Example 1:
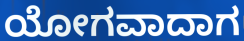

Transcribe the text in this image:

ಯೋಗವಾದಾಗ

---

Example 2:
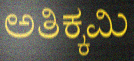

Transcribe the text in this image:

ಅತಿಕ್ಕಮಿ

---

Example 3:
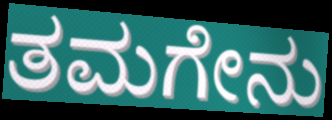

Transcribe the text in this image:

ತಮಗೇನು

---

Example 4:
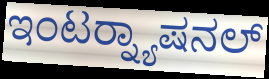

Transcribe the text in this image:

ಇಂಟರ್‍ನ್ಯಾಷನಲ್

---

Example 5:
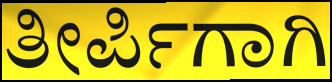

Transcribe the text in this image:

ತೀರ್ಪಿಗಾಗಿ